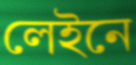
লেইনে